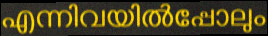
എന്നിവയിൽപ്പോലും